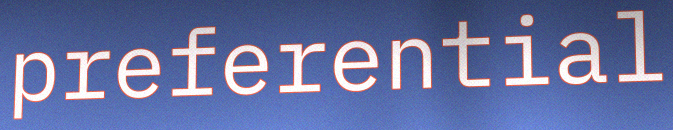
preferential